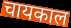
चायकाल